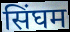
सिंघम